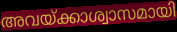
അവയ്ക്കാശ്വാസമായി